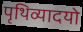
पृथिव्यादयो